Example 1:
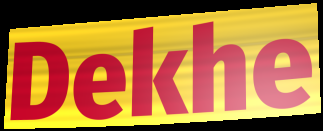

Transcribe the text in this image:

Dekhe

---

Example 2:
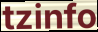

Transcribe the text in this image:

tzinfo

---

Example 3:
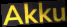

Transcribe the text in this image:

Akku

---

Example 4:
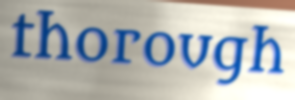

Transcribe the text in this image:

thorough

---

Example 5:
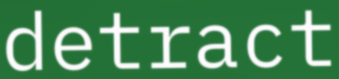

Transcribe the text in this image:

detract